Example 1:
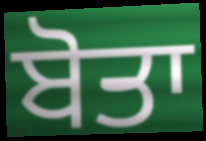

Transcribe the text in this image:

ਬੋਤਾ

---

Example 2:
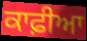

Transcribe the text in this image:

ਕਾਫ਼ੀਆ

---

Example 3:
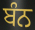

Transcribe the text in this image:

ਬੰਨ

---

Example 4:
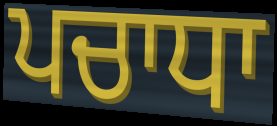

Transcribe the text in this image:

ਪਚਾਧਾ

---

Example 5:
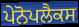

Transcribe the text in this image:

ਪੇਨੋਪਲੈਕਸ